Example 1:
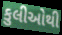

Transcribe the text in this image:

કુલીઓથી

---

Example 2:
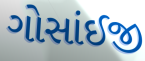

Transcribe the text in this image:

ગોસાંઈજી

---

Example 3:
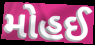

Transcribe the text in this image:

મોહઈ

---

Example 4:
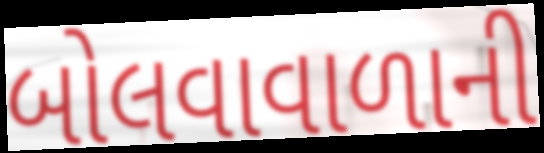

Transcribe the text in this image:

બોલવાવાળાની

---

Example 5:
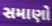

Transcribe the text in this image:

સમાણો